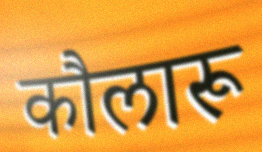
कौलारू